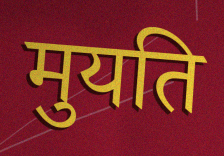
मुयति